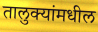
तालुक्यांमधील